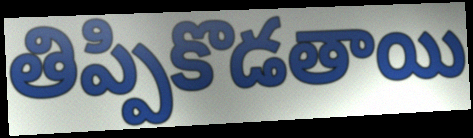
తిప్పికొడతాయి